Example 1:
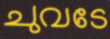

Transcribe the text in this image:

ചുവടേ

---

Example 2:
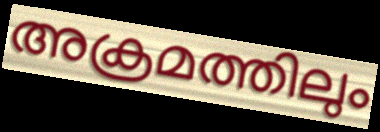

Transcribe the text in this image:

അക്രമത്തിലും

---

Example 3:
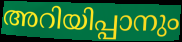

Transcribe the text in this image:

അറിയിപ്പാനും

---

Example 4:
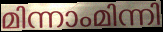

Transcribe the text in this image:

മിന്നാംമിന്നി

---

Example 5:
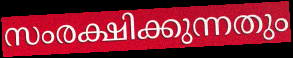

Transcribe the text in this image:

സംരക്ഷിക്കുന്നതും